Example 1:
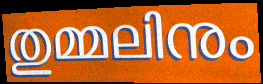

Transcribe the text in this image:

തുമ്മലിനും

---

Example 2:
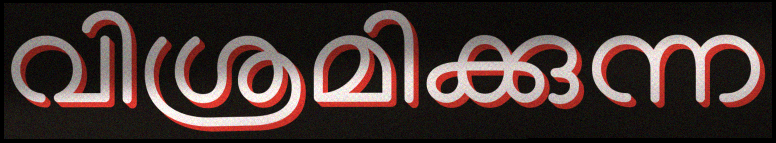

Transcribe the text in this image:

വിശ്രമിക്കുന്ന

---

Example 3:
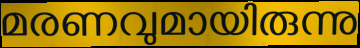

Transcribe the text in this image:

മരണവുമായിരുന്നു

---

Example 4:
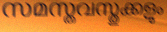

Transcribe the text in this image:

സമസ്തവസ്തുക്കളും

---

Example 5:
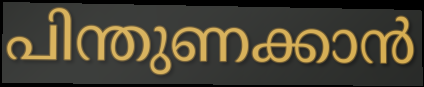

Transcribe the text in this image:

പിന്തുണക്കാൻ